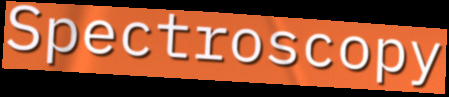
Spectroscopy